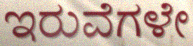
ಇರುವೆಗಳೇ